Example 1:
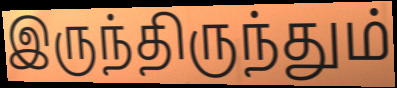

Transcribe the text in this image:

இருந்திருந்தும்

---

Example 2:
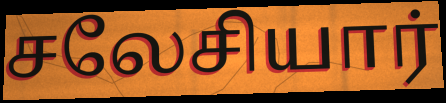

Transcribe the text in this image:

சலேசியார்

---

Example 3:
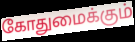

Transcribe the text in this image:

கோதுமைக்கும்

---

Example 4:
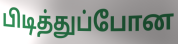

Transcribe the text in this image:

பிடித்துப்போன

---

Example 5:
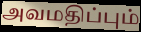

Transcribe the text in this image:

அவமதிப்பும்